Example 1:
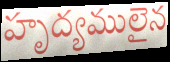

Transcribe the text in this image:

హృద్యములైన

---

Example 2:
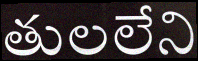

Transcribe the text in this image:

తులలేని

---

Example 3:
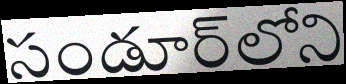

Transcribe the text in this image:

సండూర్‌లోని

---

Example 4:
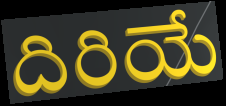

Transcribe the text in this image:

దిరియే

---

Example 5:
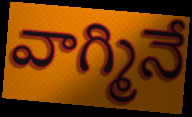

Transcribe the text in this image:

వాగ్మినే